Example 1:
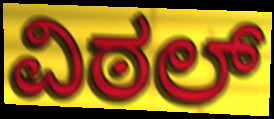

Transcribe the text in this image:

ವಿಠಲ್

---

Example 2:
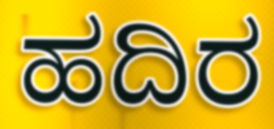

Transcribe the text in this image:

ಹದಿರ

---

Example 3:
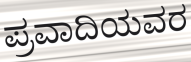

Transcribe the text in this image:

ಪ್ರವಾದಿಯವರ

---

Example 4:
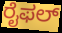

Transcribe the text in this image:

ರೈಫಲ್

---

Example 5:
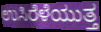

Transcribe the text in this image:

ಉಸಿರೆಳೆಯುತ್ತ